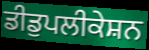
ਡੀਡੁਪਲੀਕੇਸ਼ਨ